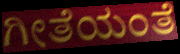
ಗೀತೆಯಂತೆ